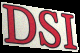
DSI